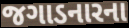
જગાડનારના